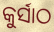
କୁର୍ସାଠ